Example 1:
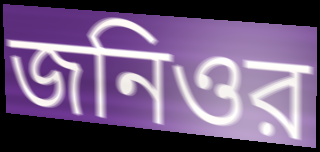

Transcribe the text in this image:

জনিওর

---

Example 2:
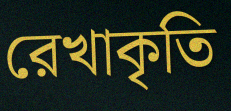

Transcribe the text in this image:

রেখাকৃতি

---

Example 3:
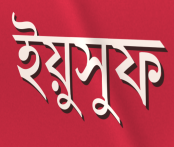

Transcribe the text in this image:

ইয়ুসুফ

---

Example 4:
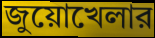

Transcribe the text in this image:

জুয়োখেলার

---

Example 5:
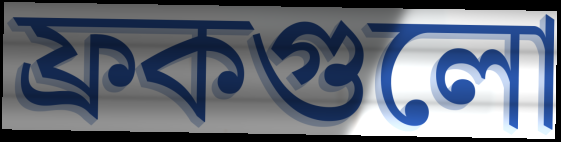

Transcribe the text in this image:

ফ্রকগুলো